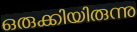
ഒരുക്കിയിരുന്നു